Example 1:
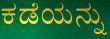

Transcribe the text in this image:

ಕಡೆಯನ್ನು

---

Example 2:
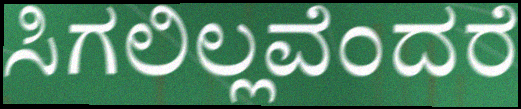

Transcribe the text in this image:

ಸಿಗಲಿಲ್ಲವೆಂದರೆ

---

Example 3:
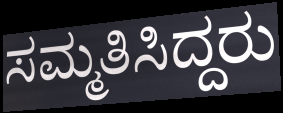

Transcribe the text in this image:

ಸಮ್ಮತಿಸಿದ್ದರು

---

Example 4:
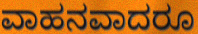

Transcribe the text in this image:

ವಾಹನವಾದರೂ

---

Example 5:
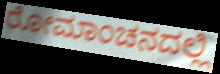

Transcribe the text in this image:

ರೋಮಾಂಚನದಲ್ಲಿ